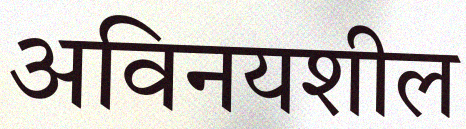
अविनयशील